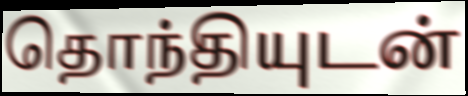
தொந்தியுடன்